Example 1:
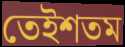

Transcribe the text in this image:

তেইশতম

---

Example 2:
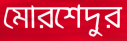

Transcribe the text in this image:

মোরশেদুর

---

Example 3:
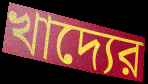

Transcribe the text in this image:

খাদ্যের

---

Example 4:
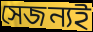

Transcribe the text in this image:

সেজন্যই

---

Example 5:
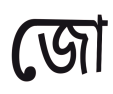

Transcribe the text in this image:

জো